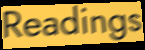
Readings